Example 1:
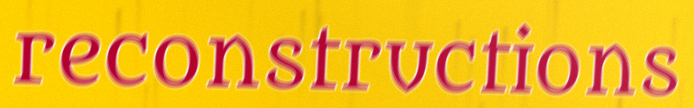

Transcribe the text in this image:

reconstructions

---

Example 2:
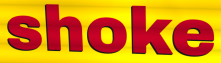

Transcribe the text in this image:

shoke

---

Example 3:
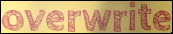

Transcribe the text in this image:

overwrite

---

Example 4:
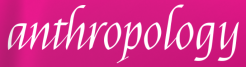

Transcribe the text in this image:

anthropology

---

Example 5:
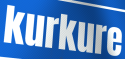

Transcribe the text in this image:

kurkure